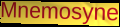
Mnemosyne